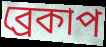
ব্রেকাপ